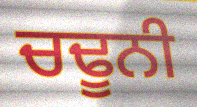
ਚਢੂਨੀ